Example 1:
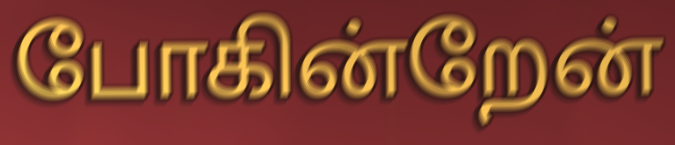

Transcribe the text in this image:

போகின்றேன்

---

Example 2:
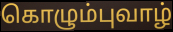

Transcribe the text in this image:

கொழும்புவாழ்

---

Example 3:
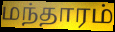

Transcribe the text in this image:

மந்தாரம்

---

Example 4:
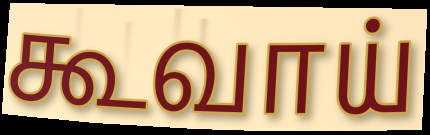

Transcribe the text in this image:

கூவாய்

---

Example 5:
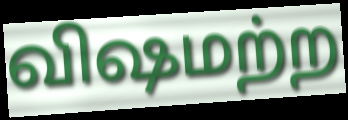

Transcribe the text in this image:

விஷமற்ற